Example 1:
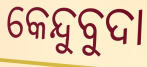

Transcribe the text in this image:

କେନ୍ଦୁବୁଦା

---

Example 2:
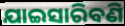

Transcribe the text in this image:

ଯାଇସାରିବଣି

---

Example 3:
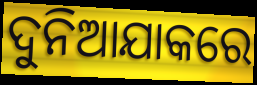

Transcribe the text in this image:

ଦୁନିଆଯାକରେ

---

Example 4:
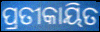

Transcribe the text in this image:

ପ୍ରତୀକାୟିତ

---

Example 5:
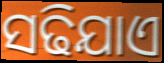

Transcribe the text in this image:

ସଢିଯାଏ